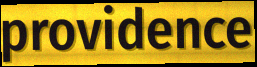
providence